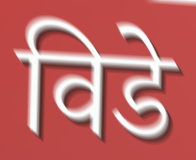
विडे